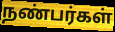
நண்பர்கள்